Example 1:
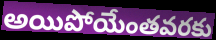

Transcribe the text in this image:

అయిపోయేంతవరకు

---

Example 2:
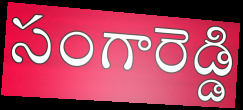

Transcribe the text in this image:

సంగారెడ్డి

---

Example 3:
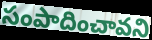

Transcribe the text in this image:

సంపాదించావని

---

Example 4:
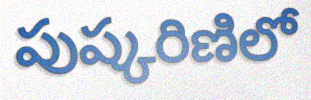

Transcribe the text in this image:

పుష్కరిణిలో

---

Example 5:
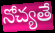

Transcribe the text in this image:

నోచ్యతే